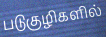
படுகுழிகளில்